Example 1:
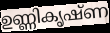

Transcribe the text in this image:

ഉണ്ണികൃഷ്ണ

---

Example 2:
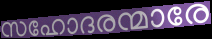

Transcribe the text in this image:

സഹോദരന്മാരേ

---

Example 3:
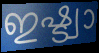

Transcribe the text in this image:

ഇഷ്ട്വാ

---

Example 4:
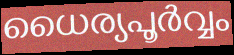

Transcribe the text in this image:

ധൈര്യപൂർവ്വം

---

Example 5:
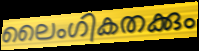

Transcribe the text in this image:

ലൈംഗികതക്കും